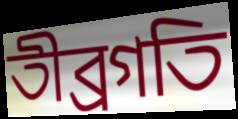
তীব্রগতি